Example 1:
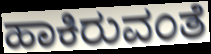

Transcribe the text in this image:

ಹಾಕಿರುವಂತೆ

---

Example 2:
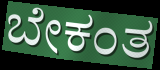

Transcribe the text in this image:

ಬೇಕಂತ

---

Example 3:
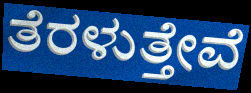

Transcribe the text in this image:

ತೆರಳುತ್ತೇವೆ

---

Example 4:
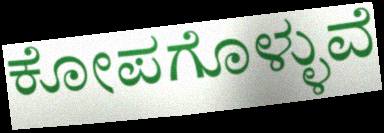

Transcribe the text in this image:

ಕೋಪಗೊಳ್ಳುವೆ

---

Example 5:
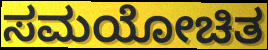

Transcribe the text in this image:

ಸಮಯೋಚಿತ